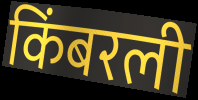
किंबरली